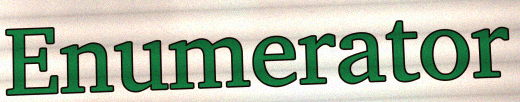
Enumerator